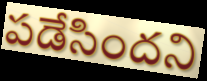
పడేసిందని